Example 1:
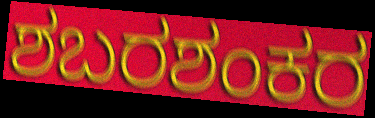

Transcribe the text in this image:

ಶಬರಶಂಕರ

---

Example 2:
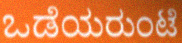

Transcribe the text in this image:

ಒಡೆಯರುಂಟೆ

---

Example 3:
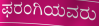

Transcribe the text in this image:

ಫರಂಗಿಯವರು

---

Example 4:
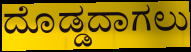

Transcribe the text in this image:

ದೊಡ್ಡದಾಗಲು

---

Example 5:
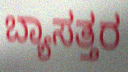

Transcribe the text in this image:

ಬ್ಯಾಸತ್ತರ